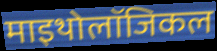
माइथोलॉजिकल